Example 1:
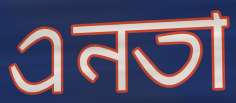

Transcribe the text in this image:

এনতা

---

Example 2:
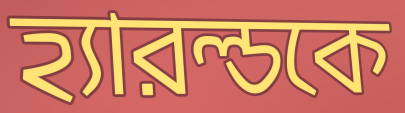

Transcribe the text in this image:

হ্যারল্ডকে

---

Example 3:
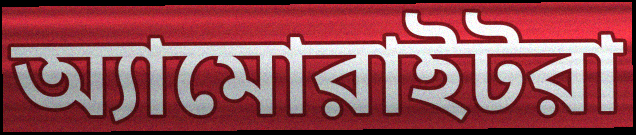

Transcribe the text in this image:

অ্যামোরাইটরা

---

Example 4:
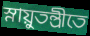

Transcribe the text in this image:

স্নায়ুতন্ত্রীতে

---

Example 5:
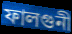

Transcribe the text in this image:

ফালগুনী